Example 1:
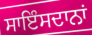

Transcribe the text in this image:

ਸਾਇੰਸਦਾਨਾਂ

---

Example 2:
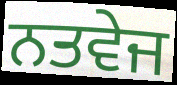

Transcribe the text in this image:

ਨਤਵੇਜ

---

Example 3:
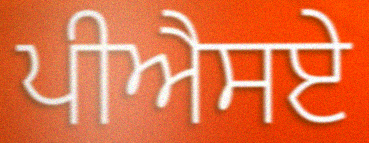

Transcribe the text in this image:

ਪੀਐਸਏ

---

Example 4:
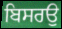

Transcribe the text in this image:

ਬਿਸਰਉ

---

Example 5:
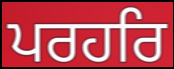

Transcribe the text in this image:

ਪਰਹਰਿ